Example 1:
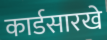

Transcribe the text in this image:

कार्डसारखे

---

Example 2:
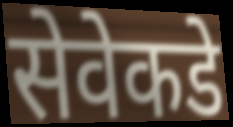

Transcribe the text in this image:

सेवेकडे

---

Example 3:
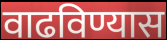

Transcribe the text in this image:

वाढविण्यास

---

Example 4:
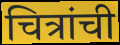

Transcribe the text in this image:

चित्रांची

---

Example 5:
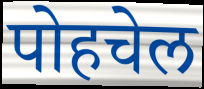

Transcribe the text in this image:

पोहचेल